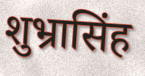
शुभ्रासिंह